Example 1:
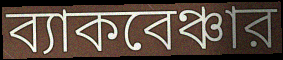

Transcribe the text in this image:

ব্যাকবেঞ্চার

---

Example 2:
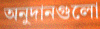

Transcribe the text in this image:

অনুদানগুলো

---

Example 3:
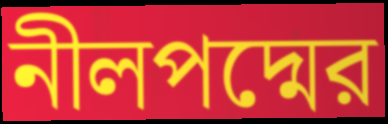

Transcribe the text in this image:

নীলপদ্মের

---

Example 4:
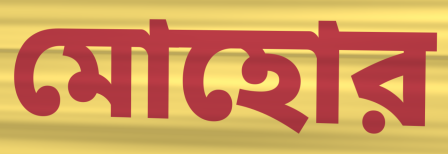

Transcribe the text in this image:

মোহোর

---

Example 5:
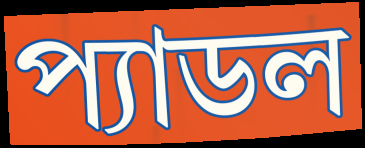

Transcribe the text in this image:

প্যাডল